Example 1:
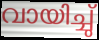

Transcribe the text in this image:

വായിച്ചു്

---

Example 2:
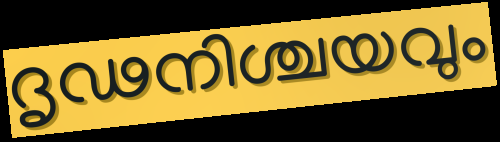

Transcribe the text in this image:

ദൃഢനിശ്ചയവും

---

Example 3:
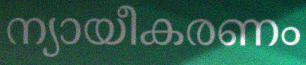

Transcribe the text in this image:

ന്യായീകരണം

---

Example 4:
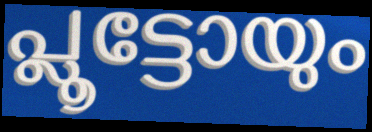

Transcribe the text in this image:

പ്ലൂട്ടോയും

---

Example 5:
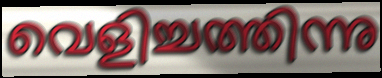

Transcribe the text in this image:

വെളിച്ചത്തിന്നു